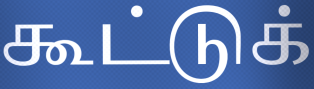
கூட்டுக்